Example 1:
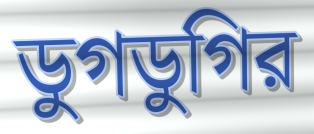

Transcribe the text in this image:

ডুগডুগির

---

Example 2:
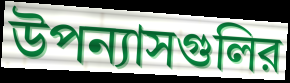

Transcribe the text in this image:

উপন্যাসগুলির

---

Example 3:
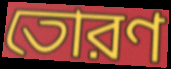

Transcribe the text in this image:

তোরণ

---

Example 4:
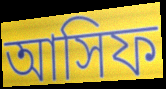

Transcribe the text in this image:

আসিফ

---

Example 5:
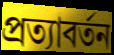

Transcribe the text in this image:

প্রত্যাবর্তন